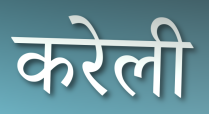
करेली